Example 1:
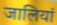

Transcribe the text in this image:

जालियां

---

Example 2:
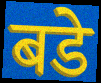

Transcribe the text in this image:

बडे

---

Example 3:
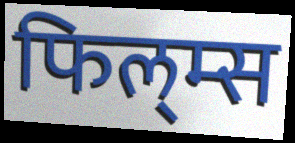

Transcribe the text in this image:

फिल्म्स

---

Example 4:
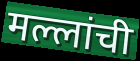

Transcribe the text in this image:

मल्लांची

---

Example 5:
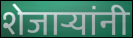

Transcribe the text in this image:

शेजाऱ्यांनी